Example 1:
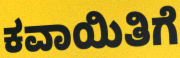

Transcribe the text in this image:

ಕವಾಯಿತಿಗೆ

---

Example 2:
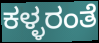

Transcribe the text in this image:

ಕಳ್ಳರಂತೆ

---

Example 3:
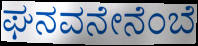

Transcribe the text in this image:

ಘನವನೇನೆಂಬೆ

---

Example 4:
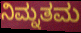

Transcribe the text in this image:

ನಿಮ್ನತಮ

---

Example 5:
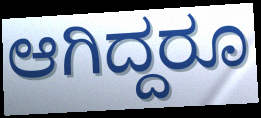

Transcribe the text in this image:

ಆಗಿದ್ದರೂ